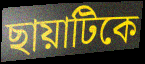
ছায়াটিকে